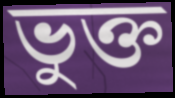
ভুক্ত